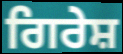
ਗਿਰੇਸ਼